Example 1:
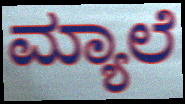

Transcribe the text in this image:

ಮ್ಯಾಲೆ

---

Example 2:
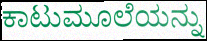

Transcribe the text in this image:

ಕಾಟುಮೂಲೆಯನ್ನು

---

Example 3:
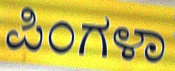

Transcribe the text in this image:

ಪಿಂಗಳಾ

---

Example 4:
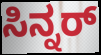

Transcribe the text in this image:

ಸಿನ್ನರ್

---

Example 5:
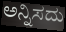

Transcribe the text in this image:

ಅನ್ನಿಸದು